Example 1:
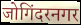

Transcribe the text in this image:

जोगिंदरनगर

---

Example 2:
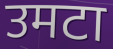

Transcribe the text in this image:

उमटा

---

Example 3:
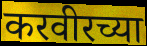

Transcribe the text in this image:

करवीरच्या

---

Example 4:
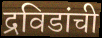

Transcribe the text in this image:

द्रविडांची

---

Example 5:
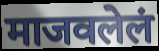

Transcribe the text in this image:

माजवलेलं